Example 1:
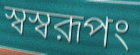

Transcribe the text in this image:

স্বস্বরূপং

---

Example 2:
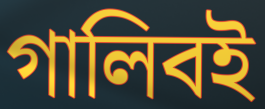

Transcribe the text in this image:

গালিবই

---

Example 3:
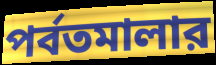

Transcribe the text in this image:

পর্বতমালার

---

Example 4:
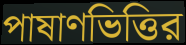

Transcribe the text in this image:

পাষাণভিত্তির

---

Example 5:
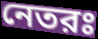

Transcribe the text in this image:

নেতরঃ